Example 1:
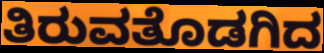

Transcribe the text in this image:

ತಿರುವತೊಡಗಿದ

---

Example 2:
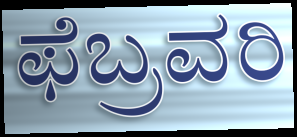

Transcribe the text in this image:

ಫೆಬ್ರವರಿ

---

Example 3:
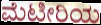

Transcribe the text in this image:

ಮೆಟೀರಿಯ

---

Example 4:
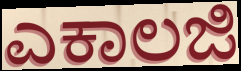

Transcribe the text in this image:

ಎಕಾಲಜಿ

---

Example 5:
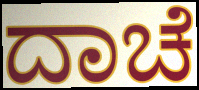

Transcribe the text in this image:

ದಾಚೆ